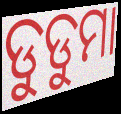
ଡୁଡୁମା